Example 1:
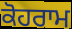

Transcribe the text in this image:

ਕੋਹਰਾਮ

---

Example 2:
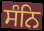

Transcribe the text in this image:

ਸੰਨਿ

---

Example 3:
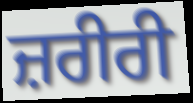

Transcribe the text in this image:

ਜ਼ਰੀਰੀ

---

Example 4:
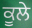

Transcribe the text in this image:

ਕੂਲੇ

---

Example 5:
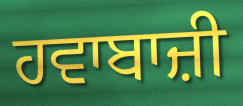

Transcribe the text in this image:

ਹਵਾਬਾਜ਼ੀ